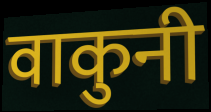
वाकुनी